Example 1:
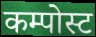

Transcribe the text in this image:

कम्पोस्ट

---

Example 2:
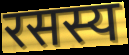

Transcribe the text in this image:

रसस्य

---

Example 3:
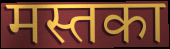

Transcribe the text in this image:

मस्तका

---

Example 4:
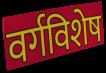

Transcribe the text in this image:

वर्गविशेष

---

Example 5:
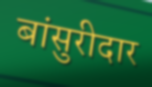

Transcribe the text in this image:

बांसुरीदार